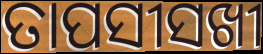
ତାପସୀସଖୀ